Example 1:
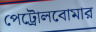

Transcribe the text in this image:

পেট্রোলবোমার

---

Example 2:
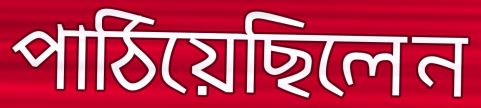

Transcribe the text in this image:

পাঠিয়েছিলেন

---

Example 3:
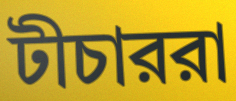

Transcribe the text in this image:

টীচাররা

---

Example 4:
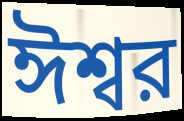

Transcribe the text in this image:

ঈশ্বর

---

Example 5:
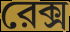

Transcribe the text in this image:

রেক্স